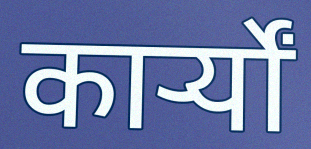
कार्र्यों